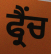
ਫ੍ਰੈਂਚ